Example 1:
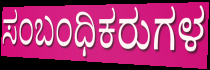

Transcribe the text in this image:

ಸಂಬಂಧಿಕರುಗಳ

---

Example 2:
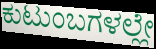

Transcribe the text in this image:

ಕುಟುಂಬಗಳಲ್ಲೇ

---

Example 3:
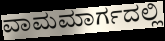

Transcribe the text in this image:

ವಾಮಮಾರ್ಗದಲ್ಲಿ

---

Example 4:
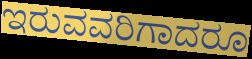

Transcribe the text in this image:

ಇರುವವರಿಗಾದರೂ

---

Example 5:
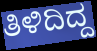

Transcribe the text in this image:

ತಿಳಿದಿದ್ದ